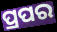
ପ୍ରପର